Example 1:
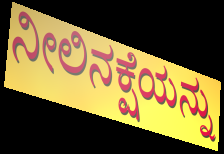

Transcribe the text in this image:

ನೀಲಿನಕ್ಷೆಯನ್ನು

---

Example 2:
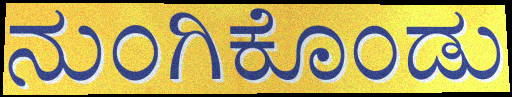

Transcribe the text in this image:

ನುಂಗಿಕೊಂಡು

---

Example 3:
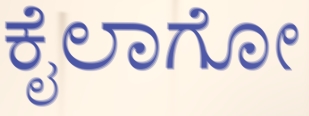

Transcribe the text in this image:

ಕೈಲಾಗೋ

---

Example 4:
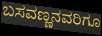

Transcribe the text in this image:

ಬಸವಣ್ಣನವರಿಗೂ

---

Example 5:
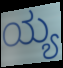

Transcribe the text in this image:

ಯ್ಯ